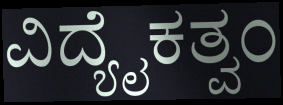
ವಿದ್ಯೈಕತ್ವಂ